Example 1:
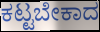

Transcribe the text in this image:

ಕಟ್ಟಬೇಕಾದ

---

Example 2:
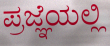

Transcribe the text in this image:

ಪ್ರಜ್ಞೆಯಲ್ಲಿ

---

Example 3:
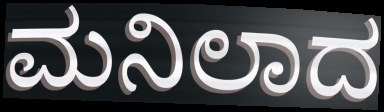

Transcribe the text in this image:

ಮನಿಲಾದ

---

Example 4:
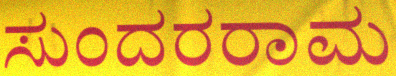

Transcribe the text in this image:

ಸುಂದರರಾಮ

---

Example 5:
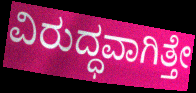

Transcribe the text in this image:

ವಿರುದ್ಧವಾಗಿತ್ತೇ